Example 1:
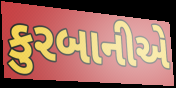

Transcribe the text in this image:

કુરબાનીએ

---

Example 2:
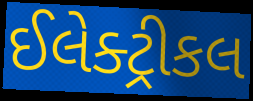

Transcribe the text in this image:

ઈલેક્ટ્રીકલ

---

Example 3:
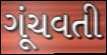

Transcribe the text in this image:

ગૂંચવતી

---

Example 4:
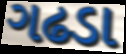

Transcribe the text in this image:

ગઢડા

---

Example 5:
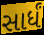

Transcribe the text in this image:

સાર્ધં